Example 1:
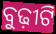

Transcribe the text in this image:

ବୁଢ଼ୀଟି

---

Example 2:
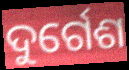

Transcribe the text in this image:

ଦୁର୍ଗେଶ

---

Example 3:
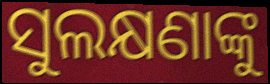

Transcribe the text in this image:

ସୁଲକ୍ଷଣାଙ୍କୁ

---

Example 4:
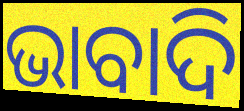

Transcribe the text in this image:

ଭାବାଦି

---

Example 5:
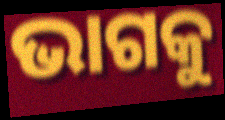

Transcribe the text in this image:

ଭାଗକୁ